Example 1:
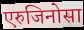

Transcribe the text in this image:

एरुजिनोसा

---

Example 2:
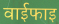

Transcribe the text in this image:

वाईफाइ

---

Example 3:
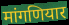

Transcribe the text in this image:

मांगणियार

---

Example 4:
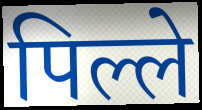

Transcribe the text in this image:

पिल्ले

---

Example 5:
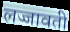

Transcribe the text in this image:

लज्जावती